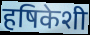
हषिकेशी